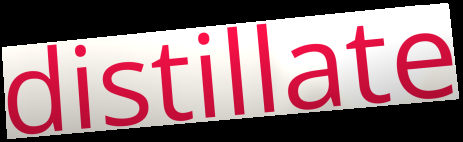
distillate